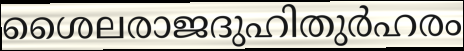
ശൈലരാജദുഹിതുർഹരം